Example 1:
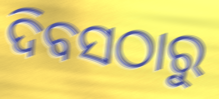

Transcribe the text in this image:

ଦିବସଠାରୁ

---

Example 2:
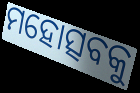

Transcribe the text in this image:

ମହୋତ୍ସବକୁ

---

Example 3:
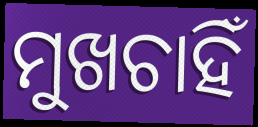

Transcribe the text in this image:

ମୁଖଚାହିଁ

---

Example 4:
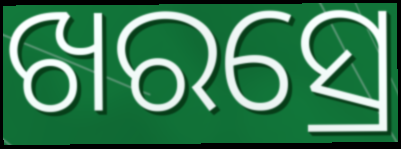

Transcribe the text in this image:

ଖରସ୍ରେ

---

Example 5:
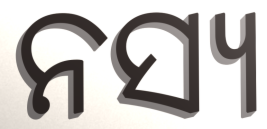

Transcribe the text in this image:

ନସ୍ୟ